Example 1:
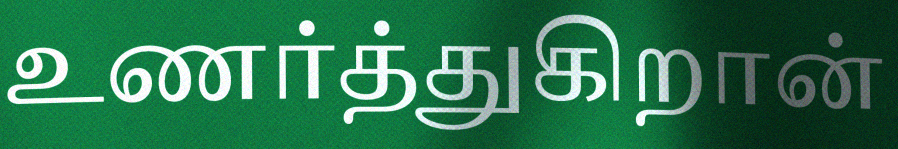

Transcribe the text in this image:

உணர்த்துகிறான்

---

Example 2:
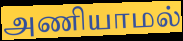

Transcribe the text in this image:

அணியாமல்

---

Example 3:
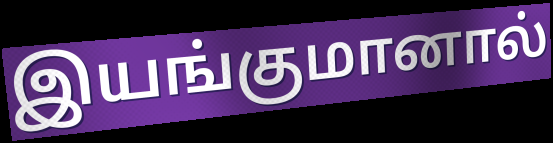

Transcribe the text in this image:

இயங்குமானால்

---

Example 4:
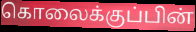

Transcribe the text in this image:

கொலைக்குப்பின்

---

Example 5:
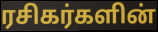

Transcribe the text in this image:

ரசிகர்களின்